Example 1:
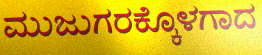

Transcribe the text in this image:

ಮುಜುಗರಕ್ಕೊಳಗಾದ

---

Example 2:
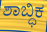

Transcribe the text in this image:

ಶಾಬ್ಧಿಕ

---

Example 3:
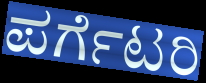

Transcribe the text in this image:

ಪರ್ಗೆಟರಿ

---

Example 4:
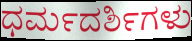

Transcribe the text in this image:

ಧರ್ಮದರ್ಶಿಗಳು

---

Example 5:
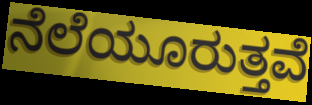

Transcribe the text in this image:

ನೆಲೆಯೂರುತ್ತವೆ